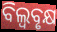
ବିଲ୍ୱବୃକ୍ଷ